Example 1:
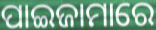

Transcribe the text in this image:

ପାଇଜାମାରେ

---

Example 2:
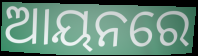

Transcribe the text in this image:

ଆୟନରେ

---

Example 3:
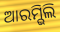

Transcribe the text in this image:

ଆରମ୍ଭିଲି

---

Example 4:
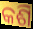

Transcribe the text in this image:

କଶି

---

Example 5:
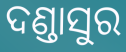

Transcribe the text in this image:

ଦଣ୍ଡାସୁର